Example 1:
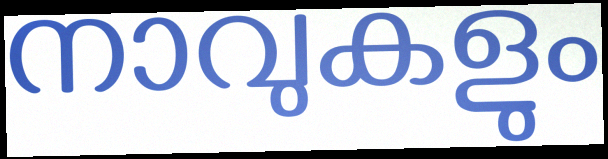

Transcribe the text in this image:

നാവുകളും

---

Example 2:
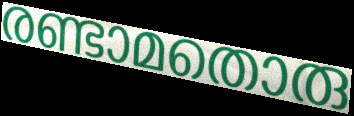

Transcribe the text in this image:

രണ്ടാമതൊരു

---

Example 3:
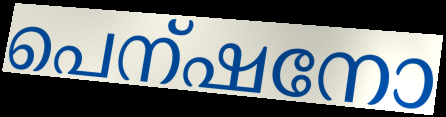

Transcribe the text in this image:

പെന്ഷനോ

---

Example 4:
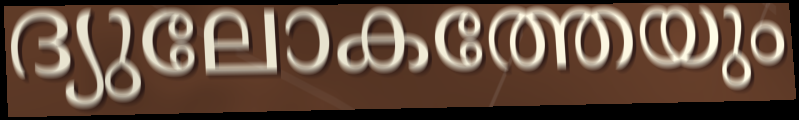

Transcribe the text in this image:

ദ്യുലോകത്തേയും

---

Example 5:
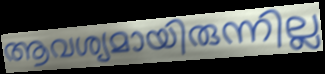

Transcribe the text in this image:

ആവശ്യമായിരുന്നില്ല